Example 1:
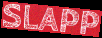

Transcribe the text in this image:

SLAPP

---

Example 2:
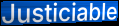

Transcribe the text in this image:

Justiciable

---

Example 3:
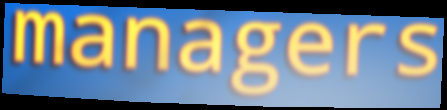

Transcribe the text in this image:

managers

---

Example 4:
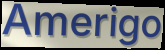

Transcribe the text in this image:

Amerigo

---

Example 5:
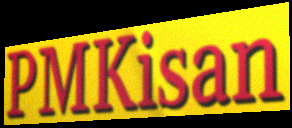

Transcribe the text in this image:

PMKisan